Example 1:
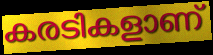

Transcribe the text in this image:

കരടികളാണ്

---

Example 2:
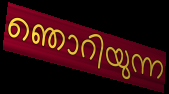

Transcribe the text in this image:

ഞൊറിയുന്ന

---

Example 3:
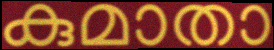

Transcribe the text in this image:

കുമാതാ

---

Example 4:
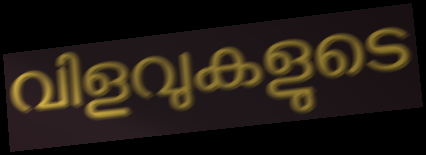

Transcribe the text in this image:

വിളവുകളുടെ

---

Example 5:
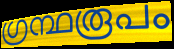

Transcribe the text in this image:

ഗ്രന്ഥരൂപം